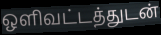
ஒளிவட்டத்துடன்